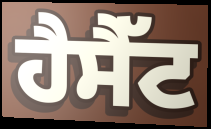
ਹੈਸੈੱਟ